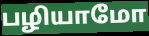
பழியாமோ